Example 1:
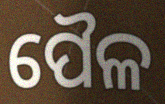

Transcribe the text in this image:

ପୈଳ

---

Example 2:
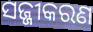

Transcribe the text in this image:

ସଜ୍ଜୀକରଣ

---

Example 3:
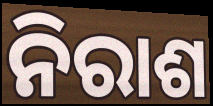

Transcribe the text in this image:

ନିରାଶ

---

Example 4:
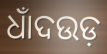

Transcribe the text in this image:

ଧାଁଦଉଡ଼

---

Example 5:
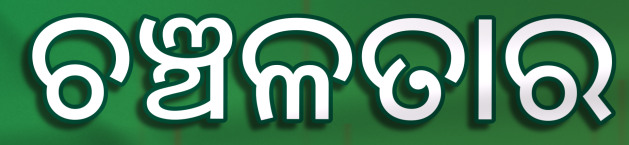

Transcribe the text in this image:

ଚଞ୍ଚଳତାର